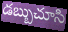
డబ్బుచూసి